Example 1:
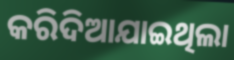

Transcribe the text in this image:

କରିଦିଆଯାଇଥିଲା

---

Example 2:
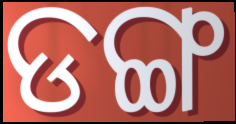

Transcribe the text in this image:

ଡଙ୍ଗ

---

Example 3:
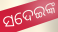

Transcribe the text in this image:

ସଦେଇଙ୍କ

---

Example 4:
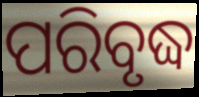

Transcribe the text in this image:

ପରିବୃଦ୍ଧ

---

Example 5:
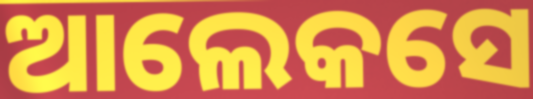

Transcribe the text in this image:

ଆଲେକସେ